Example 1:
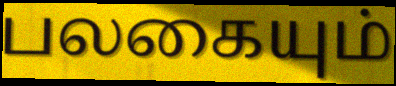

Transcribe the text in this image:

பலகையும்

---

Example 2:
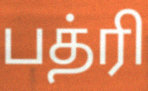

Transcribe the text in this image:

பத்ரி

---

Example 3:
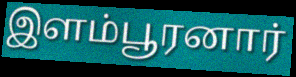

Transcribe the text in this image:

இளம்பூரனார்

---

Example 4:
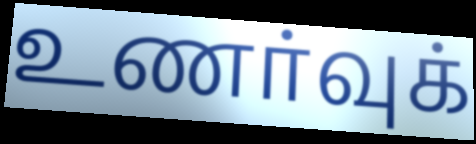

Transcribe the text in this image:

உணர்வுக்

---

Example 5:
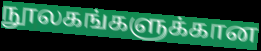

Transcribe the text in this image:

நூலகங்களுக்கான